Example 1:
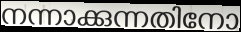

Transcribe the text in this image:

നന്നാക്കുന്നതിനോ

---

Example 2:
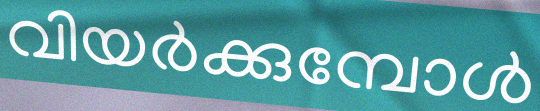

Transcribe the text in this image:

വിയർക്കുമ്പോൾ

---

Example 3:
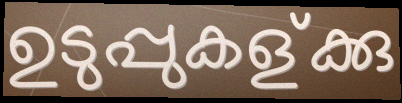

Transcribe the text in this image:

ഉടുപ്പുകള്ക്കു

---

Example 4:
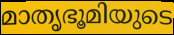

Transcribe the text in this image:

മാതൃഭൂമിയുടെ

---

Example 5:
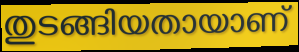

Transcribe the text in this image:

തുടങ്ങിയതായാണ്